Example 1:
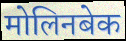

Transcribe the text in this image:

मोलिनबेक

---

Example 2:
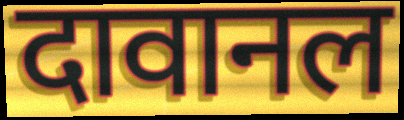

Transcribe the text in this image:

दावानल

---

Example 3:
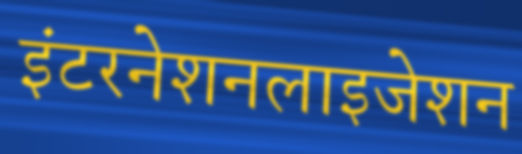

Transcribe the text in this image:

इंटरनेशनलाइजेशन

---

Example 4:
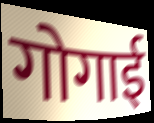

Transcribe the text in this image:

गोगाई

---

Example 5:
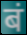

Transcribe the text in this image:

बं